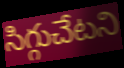
సిగ్గుచేటని